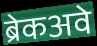
ब्रेकअवे